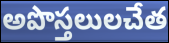
అపొస్తలులచేత